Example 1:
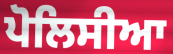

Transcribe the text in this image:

ਪੋਲਿਸੀਆ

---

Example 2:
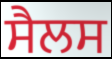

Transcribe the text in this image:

ਸੈਲਸ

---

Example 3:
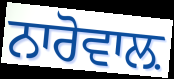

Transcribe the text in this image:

ਨਾਰੋਵਾਲ਼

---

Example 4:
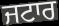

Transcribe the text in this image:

ਜਟਾਰ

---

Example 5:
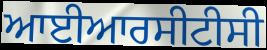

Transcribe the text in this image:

ਆਈਆਰਸੀਟੀਸੀ